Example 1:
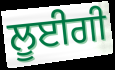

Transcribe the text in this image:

ਲੂਈਗੀ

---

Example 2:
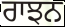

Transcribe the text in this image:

ਰਾਝਨ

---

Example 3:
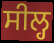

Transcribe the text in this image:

ਸੀਲ੍ਹ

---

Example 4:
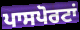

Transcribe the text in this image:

ਪਾਸਪੋਰਟਾਂ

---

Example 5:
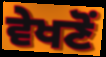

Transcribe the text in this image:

ਵੇਖਣੋਂ